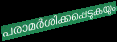
പരാമർശിക്കപ്പെടുകയും